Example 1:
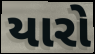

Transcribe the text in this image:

યારો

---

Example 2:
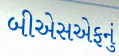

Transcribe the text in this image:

બીએસએફનું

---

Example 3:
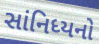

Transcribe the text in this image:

સાંનિધ્યનો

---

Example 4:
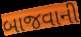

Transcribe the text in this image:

બાજવાની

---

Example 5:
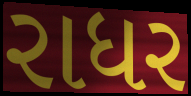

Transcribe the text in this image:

રાધર